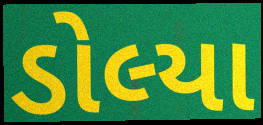
ડોલ્યા